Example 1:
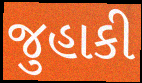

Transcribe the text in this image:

જુહાકી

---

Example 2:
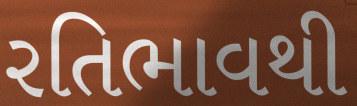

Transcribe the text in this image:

રતિભાવથી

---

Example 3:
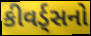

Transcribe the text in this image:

કીવર્ડ્સનો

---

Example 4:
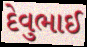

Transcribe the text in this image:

દેવુભાઈ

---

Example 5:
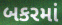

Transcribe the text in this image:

બકરમાં